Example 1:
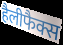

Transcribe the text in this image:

हैलीफैक्स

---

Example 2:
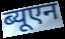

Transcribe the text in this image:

ब्यूएन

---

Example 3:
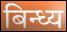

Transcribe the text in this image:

बिन्ध्य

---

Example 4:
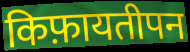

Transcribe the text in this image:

किफ़ायतीपन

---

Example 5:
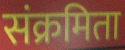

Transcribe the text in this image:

संक्रमिता